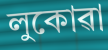
লুকোৱা